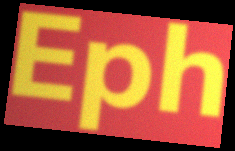
Eph